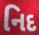
નિદ